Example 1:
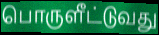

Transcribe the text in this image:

பொருளீட்டுவது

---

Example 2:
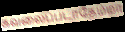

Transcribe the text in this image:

கவலைப்படாதேம்மா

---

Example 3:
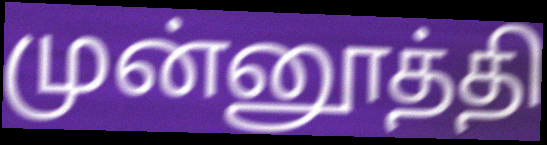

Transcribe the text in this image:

முன்னூத்தி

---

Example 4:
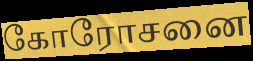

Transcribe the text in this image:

கோரோசனை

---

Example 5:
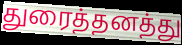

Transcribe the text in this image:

துரைத்தனத்து